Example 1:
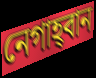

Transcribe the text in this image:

নেগাহ্‌বান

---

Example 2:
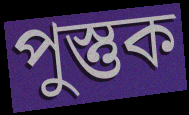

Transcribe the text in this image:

পুস্তুক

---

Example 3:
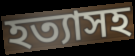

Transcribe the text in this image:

হত্যাসহ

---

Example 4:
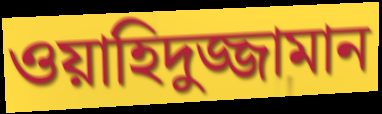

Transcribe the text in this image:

ওয়াহিদুজ্জামান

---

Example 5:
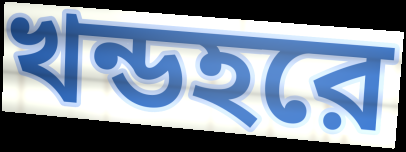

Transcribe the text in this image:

খন্ডহরে